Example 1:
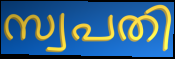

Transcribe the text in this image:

സ്വപതി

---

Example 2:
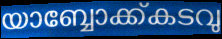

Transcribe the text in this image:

യാബ്ബോക്ക്കടവു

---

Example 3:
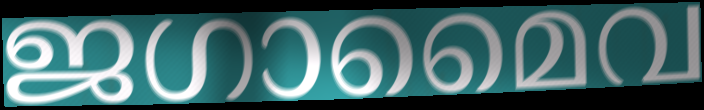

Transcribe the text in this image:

ജഗാമൈവ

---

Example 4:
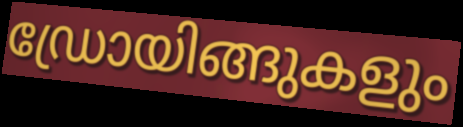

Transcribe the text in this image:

ഡ്രോയിങ്ങുകളും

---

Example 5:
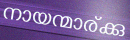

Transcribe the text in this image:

നായന്മാര്ക്കു